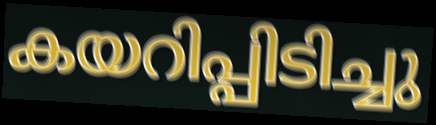
കയറിപ്പിടിച്ചു